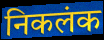
निकलंक